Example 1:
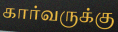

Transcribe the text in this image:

கார்வருக்கு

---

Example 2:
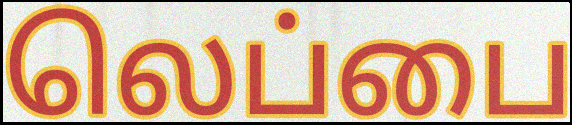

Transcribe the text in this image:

லெப்பை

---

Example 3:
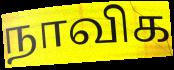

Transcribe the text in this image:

நாவிக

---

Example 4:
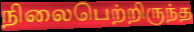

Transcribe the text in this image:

நிலைபெற்றிருந்த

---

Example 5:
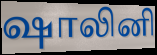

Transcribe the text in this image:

ஷாலினி